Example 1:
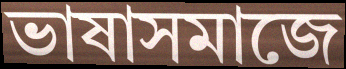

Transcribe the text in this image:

ভাষাসমাজে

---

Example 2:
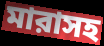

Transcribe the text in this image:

মারাসহ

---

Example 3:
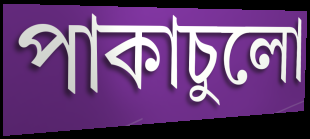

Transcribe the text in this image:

পাকাচুলো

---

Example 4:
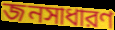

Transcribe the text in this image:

জনসাধারণ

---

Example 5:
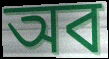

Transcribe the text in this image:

অব